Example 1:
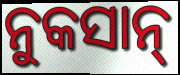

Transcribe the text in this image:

ନୁକସାନ୍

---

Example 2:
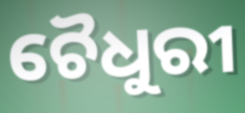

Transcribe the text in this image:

ଚୈଧୁରୀ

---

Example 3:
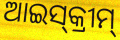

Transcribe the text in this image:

ଆଇସ୍‌କ୍ରୀମ୍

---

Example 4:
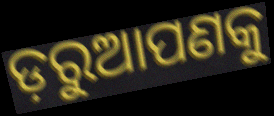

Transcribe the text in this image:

ଡ଼ରୁଆପଣକୁ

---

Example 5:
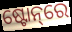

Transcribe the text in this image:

ଷ୍ଟୋନ୍‌ରେ